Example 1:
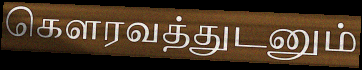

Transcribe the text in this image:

கௌரவத்துடனும்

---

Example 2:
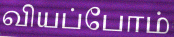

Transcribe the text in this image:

வியப்போம்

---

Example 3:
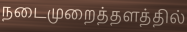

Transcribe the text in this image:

நடைமுறைத்தளத்தில்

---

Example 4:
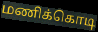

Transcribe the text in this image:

மணிக்கொடி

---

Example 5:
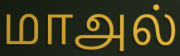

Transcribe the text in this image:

மாஅல்